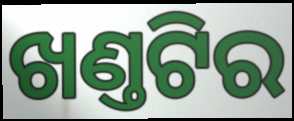
ଖଣ୍ତଟିର